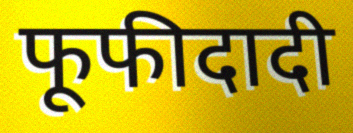
फूफीदादी